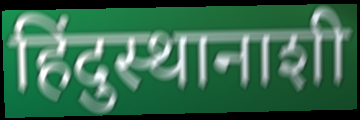
हिंदुस्थानाशी